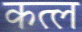
कत्‍ल